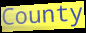
County